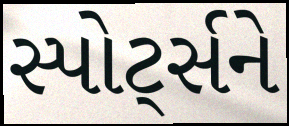
સ્પોર્ટ્સને